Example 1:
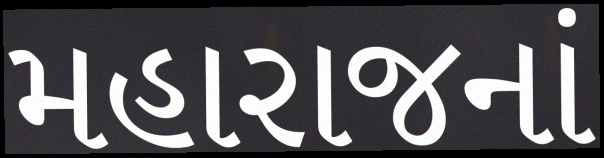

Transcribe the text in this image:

મહારાજનાં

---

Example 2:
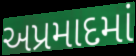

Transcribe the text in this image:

અપ્રમાદમાં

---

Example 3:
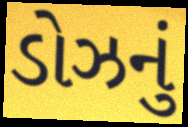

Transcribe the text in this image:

ડોઝનું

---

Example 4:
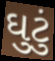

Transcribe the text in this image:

ઘુટું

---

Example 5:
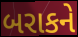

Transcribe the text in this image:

બરાકને